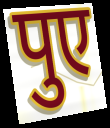
पुए